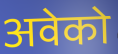
अवेको